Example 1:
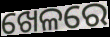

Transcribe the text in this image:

ଖେଳରେ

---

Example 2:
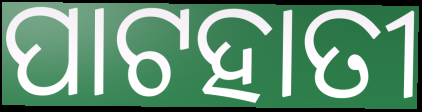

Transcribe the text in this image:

ପାଟହାତୀ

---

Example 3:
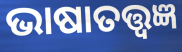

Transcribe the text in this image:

ଭାଷାତତ୍ତ୍ୱଜ୍ଞ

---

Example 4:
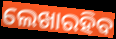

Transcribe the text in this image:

ଲେଖାରହିବ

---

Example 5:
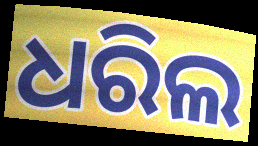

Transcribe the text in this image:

ଧରିଲ